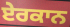
ਏਰਕਾਨ